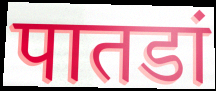
पातडां